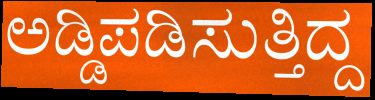
ಅಡ್ಡಿಪಡಿಸುತ್ತಿದ್ದ